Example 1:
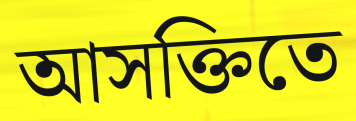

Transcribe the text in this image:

আসক্তিতে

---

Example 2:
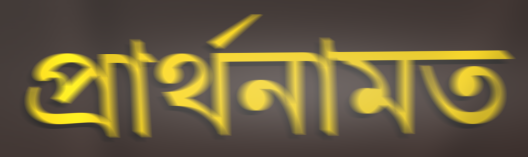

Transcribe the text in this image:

প্রার্থনামত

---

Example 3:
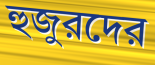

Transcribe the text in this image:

হুজুরদের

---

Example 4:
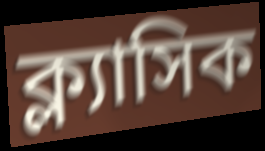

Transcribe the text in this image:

ক্ল্যাসিক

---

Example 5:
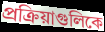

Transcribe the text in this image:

প্রক্রিয়াগুলিকে